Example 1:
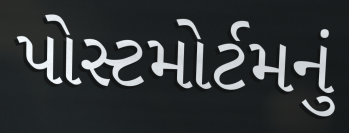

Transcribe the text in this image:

પોસ્ટમોર્ટમનું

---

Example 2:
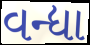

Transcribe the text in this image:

વન્દ્યા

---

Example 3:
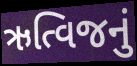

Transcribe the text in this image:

ઋત્વિજનું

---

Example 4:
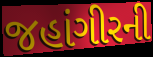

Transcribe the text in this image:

જહાંગીરની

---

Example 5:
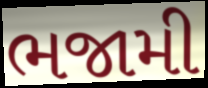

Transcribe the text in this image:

ભજામી